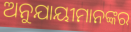
ଅନୁଯାୟୀମାନଙ୍କର